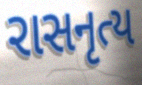
રાસનૃત્ય